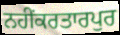
ਨਹੀਂਕਰਤਾਰਪੁਰ